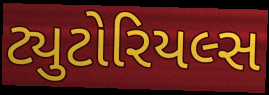
ટ્યુટોરિયલ્સ